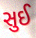
સુઈ